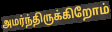
அமர்ந்திருக்கிறோம்